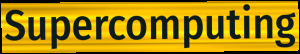
Supercomputing